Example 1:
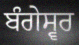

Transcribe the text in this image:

ਬੰਗੇਸ੍ਵਰ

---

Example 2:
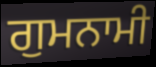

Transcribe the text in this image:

ਗੁਮਨਾਮੀ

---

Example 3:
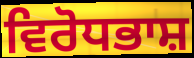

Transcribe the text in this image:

ਵਿਰੋਧਭਾਸ਼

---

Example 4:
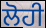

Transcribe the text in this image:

ਲੋਹੀ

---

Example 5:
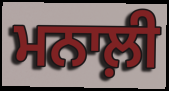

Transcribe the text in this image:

ਮਨਾਲ਼ੀ